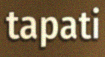
tapati